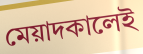
মেয়াদকালেই